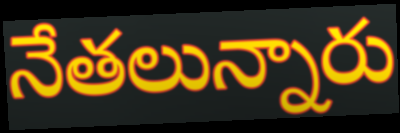
నేతలున్నారు